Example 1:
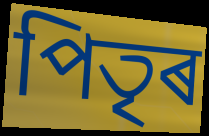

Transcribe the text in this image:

পিতৃৰ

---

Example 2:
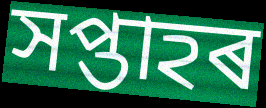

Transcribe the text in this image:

সপ্তাহৰ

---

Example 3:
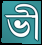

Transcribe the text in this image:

ভী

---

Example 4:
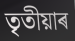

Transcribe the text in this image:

তৃতীয়াৰ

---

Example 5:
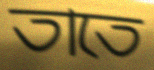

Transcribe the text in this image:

তাতে